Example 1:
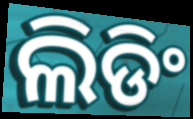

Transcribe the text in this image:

ଲିଡିଂ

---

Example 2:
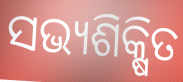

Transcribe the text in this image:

ସଭ୍ୟଶିକ୍ଷିତ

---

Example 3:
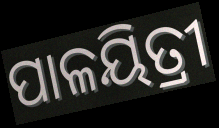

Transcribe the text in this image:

ପାଳୟିତ୍ରୀ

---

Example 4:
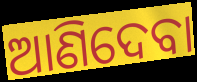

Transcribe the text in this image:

ଆଣିଦେବା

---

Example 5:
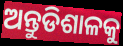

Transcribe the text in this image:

ଅନ୍ତୁଡିଶାଳକୁ